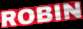
ROBIN